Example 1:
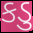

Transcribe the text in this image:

કડુ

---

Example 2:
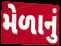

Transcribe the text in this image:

મેળાનું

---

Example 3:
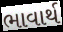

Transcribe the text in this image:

ભાવાર્થ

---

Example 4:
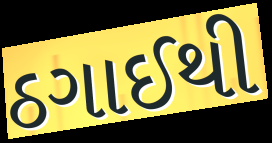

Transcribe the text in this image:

ઠગાઈથી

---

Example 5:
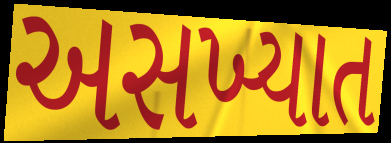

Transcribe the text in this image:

અસખ્યાત